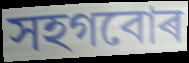
সহগবোৰ